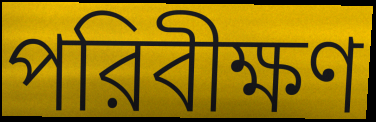
পরিবীক্ষণ